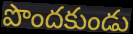
పొందకుండు